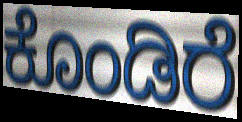
ಕೊಂಡಿರೆ